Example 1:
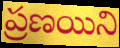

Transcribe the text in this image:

ప్రణయిని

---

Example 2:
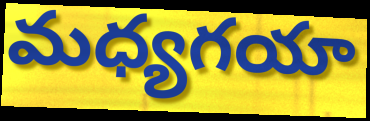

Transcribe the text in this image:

మధ్యగయా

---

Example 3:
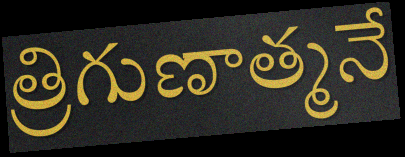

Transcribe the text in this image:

త్రిగుణాత్మనే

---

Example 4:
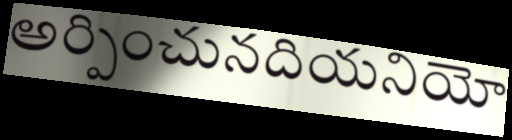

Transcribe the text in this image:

అర్పించునదియనియో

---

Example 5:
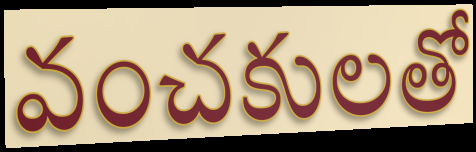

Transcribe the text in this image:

వంచకులతో